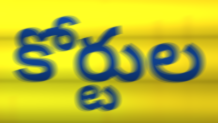
కోర్టుల